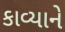
કાવ્યાને